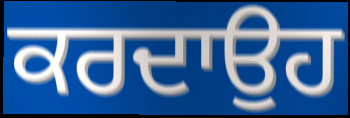
ਕਰਦਾਉਹ